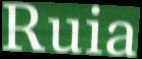
Ruia